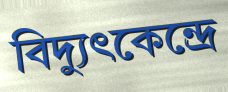
বিদ্যুৎকেন্দ্রে